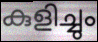
കുളിച്ചും